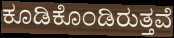
ಕೂಡಿಕೊಂಡಿರುತ್ತವೆ